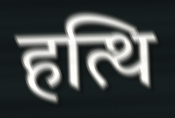
हत्थि